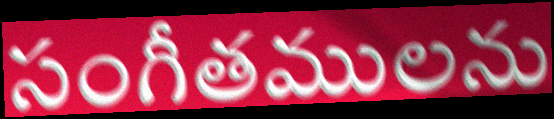
సంగీతములను